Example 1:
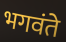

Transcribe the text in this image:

भगवंते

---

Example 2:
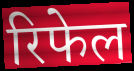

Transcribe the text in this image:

रिफेल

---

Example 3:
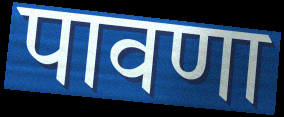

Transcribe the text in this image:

पावणा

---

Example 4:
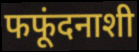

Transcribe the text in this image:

फफूंदनाशी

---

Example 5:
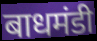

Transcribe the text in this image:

बाधमंडी